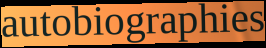
autobiographies